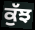
ਕੁੱਝ